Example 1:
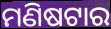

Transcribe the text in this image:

ମଣିଷଟାର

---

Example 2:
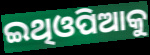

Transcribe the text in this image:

ଇଥିଓପିଆକୁ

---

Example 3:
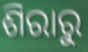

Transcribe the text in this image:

ଶିରାରୁ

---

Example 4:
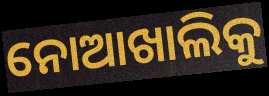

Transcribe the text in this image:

ନୋଆଖାଲିକୁ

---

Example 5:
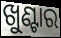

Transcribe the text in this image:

ଖୁଣ୍ଟାର